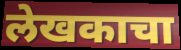
लेखकाचा